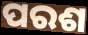
ପରଶ